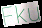
Fku